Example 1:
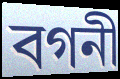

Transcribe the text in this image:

বগনী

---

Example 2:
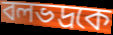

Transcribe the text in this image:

বলভদ্রকে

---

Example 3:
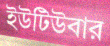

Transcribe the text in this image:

ইউটিউবার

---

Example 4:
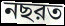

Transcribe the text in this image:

নছরত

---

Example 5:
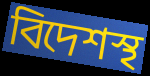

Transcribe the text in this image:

বিদেশস্থ